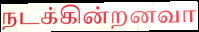
நடக்கின்றனவா